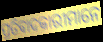
ପ୍ରତିବାଦକାରୀମାନେ